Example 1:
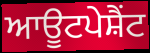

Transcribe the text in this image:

ਆਊਟਪੇਸ਼ੈਂਟ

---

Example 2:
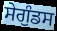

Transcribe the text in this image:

ਸੇਗੁੰਡਸ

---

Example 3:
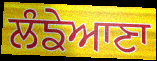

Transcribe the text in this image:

ਲੰਙੇਆਣਾ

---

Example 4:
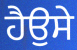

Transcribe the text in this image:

ਹੈਉਸੇ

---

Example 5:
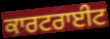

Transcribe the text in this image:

ਕਾਰਟਰਾਈਟ